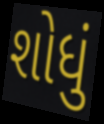
શોધું